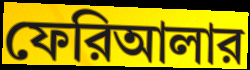
ফেরিআলার